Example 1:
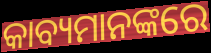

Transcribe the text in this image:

କାବ୍ୟମାନଙ୍କରେ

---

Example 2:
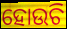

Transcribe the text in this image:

ହୋଉଚି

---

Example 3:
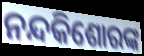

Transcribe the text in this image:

ନନ୍ଦକିଶୋରଙ୍କ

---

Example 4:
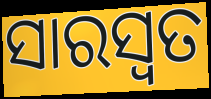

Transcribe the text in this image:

ସାରସ୍ବତ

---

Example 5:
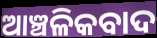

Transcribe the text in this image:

ଆଞ୍ଚଳିକବାଦ